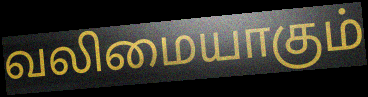
வலிமையாகும்